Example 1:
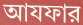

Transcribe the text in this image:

আযফার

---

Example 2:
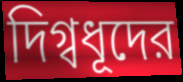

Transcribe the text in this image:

দিগ্বধূদের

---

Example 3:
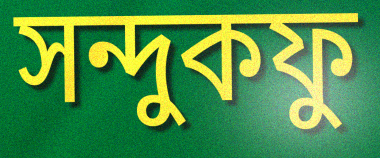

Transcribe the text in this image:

সন্দুকফু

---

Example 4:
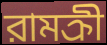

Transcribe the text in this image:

রামক্রী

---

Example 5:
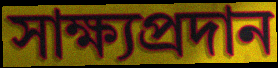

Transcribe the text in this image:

সাক্ষ্যপ্রদান